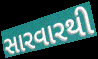
સારવારથી